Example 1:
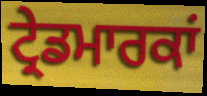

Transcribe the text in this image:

ਟ੍ਰੇਡਮਾਰਕਾਂ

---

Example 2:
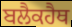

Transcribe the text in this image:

ਬਲੈਕਹੈਥ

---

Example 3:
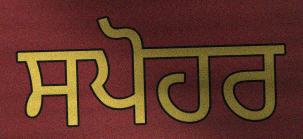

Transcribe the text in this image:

ਸਪੋਹਰ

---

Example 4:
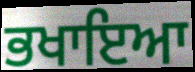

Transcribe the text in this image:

ਭਖਾਇਆ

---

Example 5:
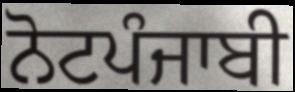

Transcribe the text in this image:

ਨੋਟਪੰਜਾਬੀ